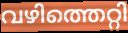
വഴിത്തെറ്റി